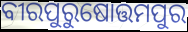
ବୀରପୁରୁଷୋତ୍ତମପୁର